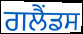
ਗਲੈਂਡਸ